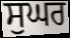
ਸੁਘਰ